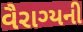
વૈરાગ્યની